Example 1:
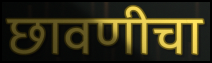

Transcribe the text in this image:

छावणीचा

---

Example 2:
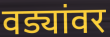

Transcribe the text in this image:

वड्यांवर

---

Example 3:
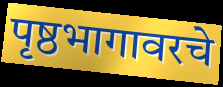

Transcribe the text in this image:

पृष्ठभागावरचे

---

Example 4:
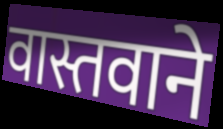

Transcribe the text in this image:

वास्तवाने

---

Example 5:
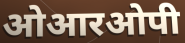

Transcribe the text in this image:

ओआरओपी